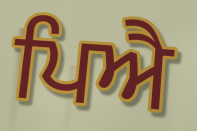
ਪਿਐ